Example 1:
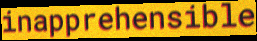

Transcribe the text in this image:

inapprehensible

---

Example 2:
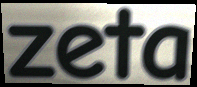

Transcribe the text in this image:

zeta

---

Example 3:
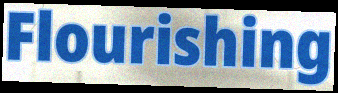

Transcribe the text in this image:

Flourishing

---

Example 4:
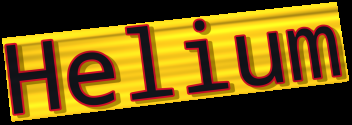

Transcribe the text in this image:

Helium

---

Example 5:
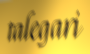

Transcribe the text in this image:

talegari